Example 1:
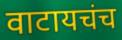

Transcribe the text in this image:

वाटायचंच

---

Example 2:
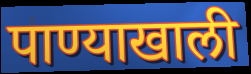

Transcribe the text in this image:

पाण्याखाली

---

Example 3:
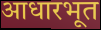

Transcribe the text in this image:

आधारभूत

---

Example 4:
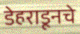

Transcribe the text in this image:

डेहराडूनचे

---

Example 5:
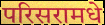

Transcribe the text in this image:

परिसरामधे